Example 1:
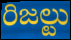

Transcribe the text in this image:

రిజల్టు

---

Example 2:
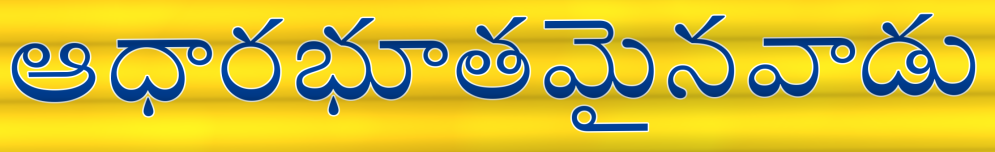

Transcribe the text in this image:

ఆధారభూతమైనవాడు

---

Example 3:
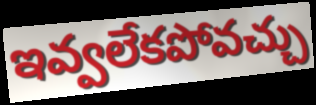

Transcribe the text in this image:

ఇవ్వలేకపోవచ్చు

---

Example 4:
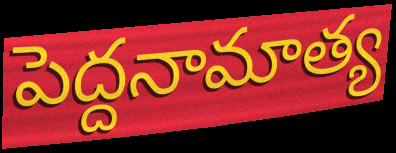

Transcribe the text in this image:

పెద్దనామాత్య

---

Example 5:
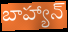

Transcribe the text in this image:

బాహ్యాన్